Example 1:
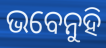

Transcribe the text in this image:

ଭବେନୁହି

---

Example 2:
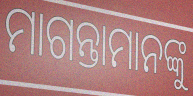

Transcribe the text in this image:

ମାଗନ୍ତାମାନଙ୍କୁ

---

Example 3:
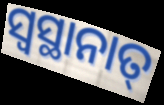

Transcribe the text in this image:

ସ୍ଵସ୍ଥାନାତ୍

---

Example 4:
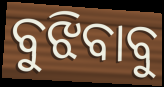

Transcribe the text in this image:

ବୁଝିବାବୁ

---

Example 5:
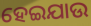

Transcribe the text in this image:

ହେଇଯାଉ